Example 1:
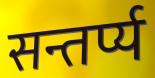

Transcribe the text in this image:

सन्तर्प्य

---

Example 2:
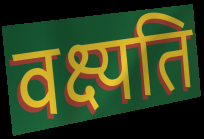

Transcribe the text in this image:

वक्ष्यति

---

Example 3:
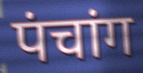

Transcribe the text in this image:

पंचांग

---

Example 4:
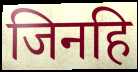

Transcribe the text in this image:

जिनहि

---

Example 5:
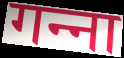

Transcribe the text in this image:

गन्‍ना